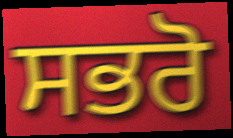
ਸਭਰੋ